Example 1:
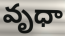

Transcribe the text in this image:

వృధా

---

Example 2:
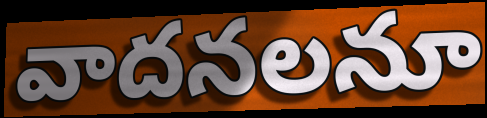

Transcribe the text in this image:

వాదనలనూ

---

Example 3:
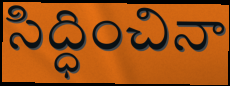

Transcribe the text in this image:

సిద్ధించినా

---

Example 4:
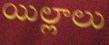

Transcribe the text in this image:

యిల్లాలు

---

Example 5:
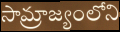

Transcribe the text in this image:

సామ్రాజ్యంలోని